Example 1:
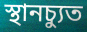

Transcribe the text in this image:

স্থানচ্যুত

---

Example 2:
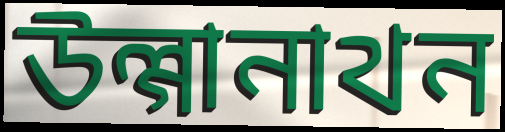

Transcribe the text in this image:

উল্গানাথন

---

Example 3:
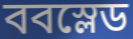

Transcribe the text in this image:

ববস্লেড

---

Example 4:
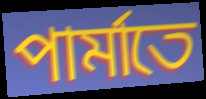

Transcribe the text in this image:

পার্মাতে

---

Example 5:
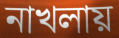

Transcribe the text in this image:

নাখলায়